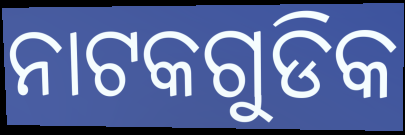
ନାଟକଗୁଡିକ